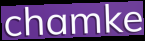
chamke